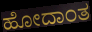
ಹೋದಾಂತ